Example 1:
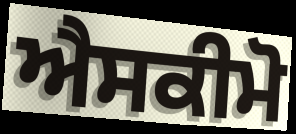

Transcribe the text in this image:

ਐਸਕੀਮੋ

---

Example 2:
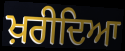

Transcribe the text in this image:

ਖ਼ਰੀਦਿਆ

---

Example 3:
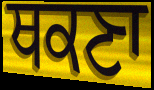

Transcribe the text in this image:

ਥਕਣਾ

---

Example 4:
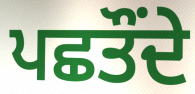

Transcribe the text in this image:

ਪਛਤੌਂਦੇ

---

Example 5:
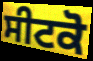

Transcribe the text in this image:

ਸੀਟਕੋ